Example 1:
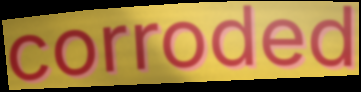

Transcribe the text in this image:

corroded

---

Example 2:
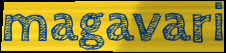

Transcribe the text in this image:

magavari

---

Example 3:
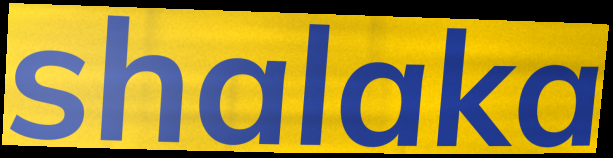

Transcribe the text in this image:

shalaka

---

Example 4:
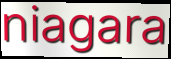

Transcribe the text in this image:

niagara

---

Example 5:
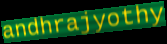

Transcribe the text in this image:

andhrajyothy